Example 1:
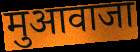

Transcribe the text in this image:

मुआवाजा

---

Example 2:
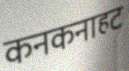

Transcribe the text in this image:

कनकनाहट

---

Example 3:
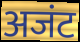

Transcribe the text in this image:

अजंट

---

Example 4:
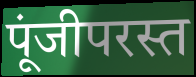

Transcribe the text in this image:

पूंजीपरस्त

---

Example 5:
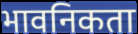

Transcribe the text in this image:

भावनिकता